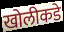
खोलीकडे